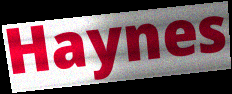
Haynes